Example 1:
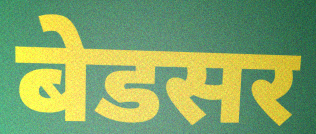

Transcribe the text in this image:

बेडसर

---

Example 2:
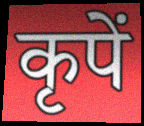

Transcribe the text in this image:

कृपें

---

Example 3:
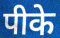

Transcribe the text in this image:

पीके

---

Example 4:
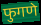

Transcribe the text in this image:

फुगणे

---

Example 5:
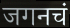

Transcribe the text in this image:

जगनचं